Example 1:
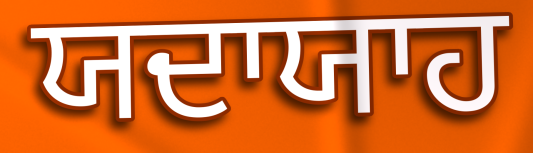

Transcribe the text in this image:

ਯਦਾਯਾਹ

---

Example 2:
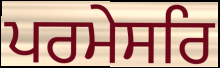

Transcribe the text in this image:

ਪਰਮੇਸਰਿ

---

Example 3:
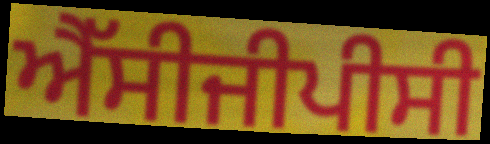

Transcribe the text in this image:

ਐੱਸੀਜੀਪੀਸੀ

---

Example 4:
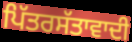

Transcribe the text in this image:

ਪਿੱਤਰਸੱਤਾਵਾਦੀ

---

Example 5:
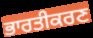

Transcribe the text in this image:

ਭਾਰਤੀਕਰਣ